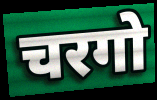
चरगो